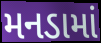
મનડામાં